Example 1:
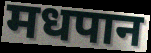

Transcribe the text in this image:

मधपान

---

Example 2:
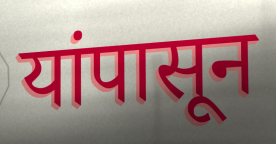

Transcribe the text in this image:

यांपासून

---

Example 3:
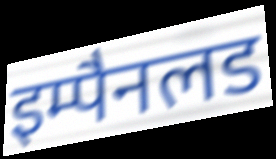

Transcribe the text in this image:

इम्पैनलड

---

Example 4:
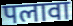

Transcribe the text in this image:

पलावा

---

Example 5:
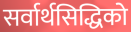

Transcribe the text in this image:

सर्वार्थसिद्धिको